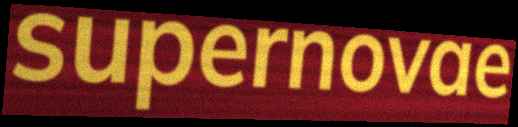
supernovae